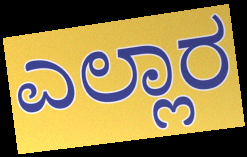
ಎಲ್ಲಾರ